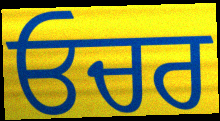
ਓਚਰ